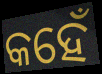
କହେଁ